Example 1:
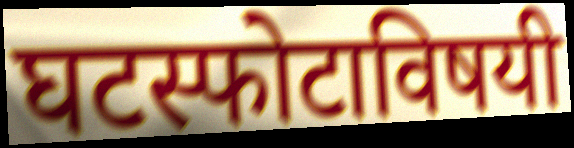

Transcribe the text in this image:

घटस्फोटाविषयी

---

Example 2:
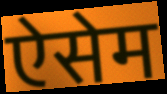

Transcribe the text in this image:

ऐसेम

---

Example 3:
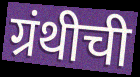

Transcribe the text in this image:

ग्रंथीची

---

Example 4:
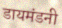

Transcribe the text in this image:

डायमंडनी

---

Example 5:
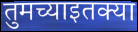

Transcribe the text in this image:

तुमच्याइतक्या